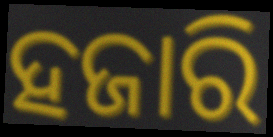
ହଜାରି